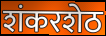
शंकरशेठ